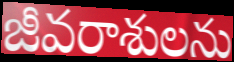
జీవరాశులను